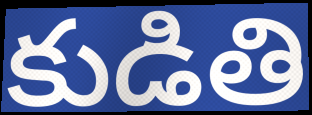
కుడితి